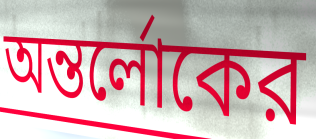
অন্তর্লোকের